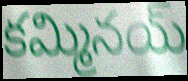
కమ్మినయ్